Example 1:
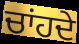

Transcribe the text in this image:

ਚਾਂਹਦੇ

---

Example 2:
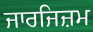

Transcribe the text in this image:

ਜਾਰਜਿਜ਼ਮ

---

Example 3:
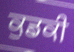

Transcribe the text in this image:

ਕੁਡਕੀ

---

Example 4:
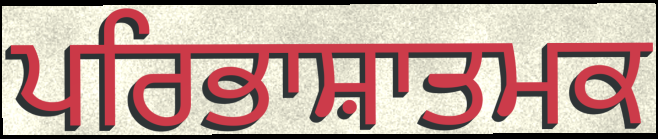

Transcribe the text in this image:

ਪਰਿਭਾਸ਼ਾਤਮਕ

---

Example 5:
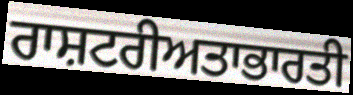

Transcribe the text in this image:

ਰਾਸ਼ਟਰੀਅਤਾਭਾਰਤੀ